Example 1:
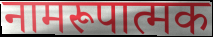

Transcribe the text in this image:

नामरूपात्मक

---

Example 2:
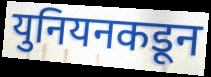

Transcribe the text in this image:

युनियनकडून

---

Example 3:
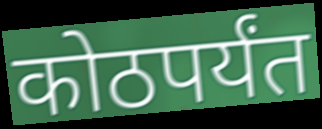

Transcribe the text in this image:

कोठपर्यंत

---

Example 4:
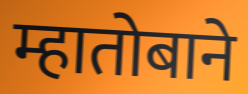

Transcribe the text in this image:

म्हातोबाने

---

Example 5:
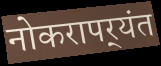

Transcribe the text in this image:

नोकरापर्यंत